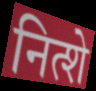
नित्शे